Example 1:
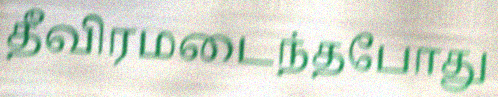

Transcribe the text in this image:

தீவிரமடைந்தபோது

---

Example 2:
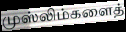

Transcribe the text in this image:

முஸ்லிம்களைத்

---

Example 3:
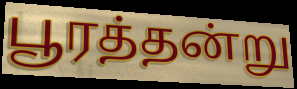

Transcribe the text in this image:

பூரத்தன்று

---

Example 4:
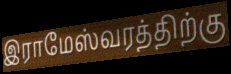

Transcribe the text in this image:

இராமேஸ்வரத்திற்கு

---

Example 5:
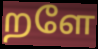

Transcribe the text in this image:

றளே